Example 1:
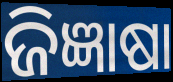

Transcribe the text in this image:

ଜିଜ୍ଞାଷା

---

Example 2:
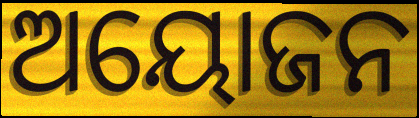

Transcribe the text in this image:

ଅୟୋଜନ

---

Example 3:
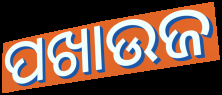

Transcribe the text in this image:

ପଖାଉଜ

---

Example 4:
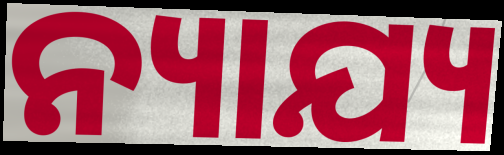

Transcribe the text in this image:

ନ୍ୟାଯ୍ୟ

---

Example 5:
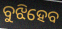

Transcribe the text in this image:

ବୁଝିହେବ